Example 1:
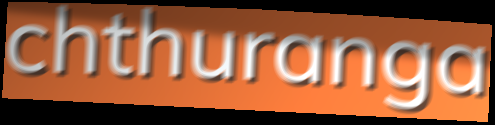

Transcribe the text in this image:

chthuranga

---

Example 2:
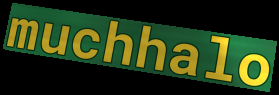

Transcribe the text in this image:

muchhalo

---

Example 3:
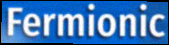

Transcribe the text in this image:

Fermionic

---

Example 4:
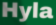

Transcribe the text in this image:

Hyla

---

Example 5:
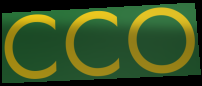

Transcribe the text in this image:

CCO